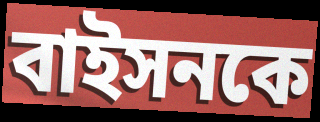
বাইসনকে